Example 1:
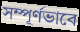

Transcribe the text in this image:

সম্পূৰ্ণভাবে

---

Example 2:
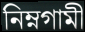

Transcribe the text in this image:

নিম্নগামী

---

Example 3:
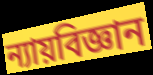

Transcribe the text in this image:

ন্যায়বিজ্ঞান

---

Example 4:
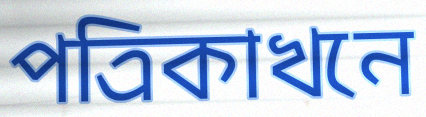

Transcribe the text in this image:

পত্ৰিকাখনে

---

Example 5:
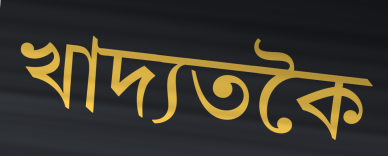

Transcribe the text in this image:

খাদ্যতকৈ